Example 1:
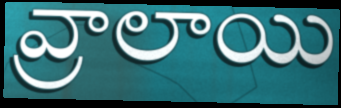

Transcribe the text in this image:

వ్రాలాయి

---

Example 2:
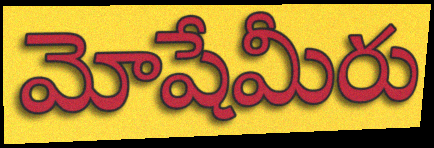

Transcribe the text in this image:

మోషేమీరు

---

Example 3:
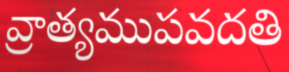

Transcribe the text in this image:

వ్రాత్యముపవదతి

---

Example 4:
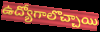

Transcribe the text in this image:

ఉద్యోగాలొచ్చాయి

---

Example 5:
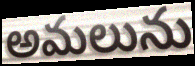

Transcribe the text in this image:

అమలును